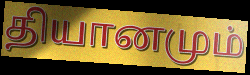
தியானமும்